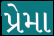
પ્રેમા